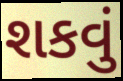
શકવું